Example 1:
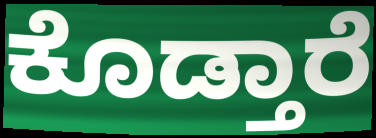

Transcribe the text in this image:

ಕೊಡ್ತಾರೆ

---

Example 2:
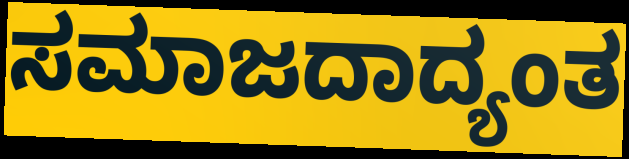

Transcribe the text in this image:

ಸಮಾಜದಾದ್ಯಂತ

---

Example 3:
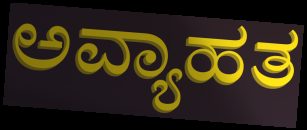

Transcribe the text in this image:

ಅವ್ಯಾಹತ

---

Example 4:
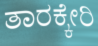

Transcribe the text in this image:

ತಾರಕ್ಕೇರಿ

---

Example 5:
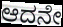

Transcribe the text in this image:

ಆದನೇ